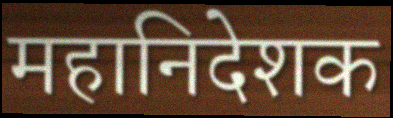
महानिदेशक